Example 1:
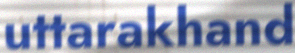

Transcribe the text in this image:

uttarakhand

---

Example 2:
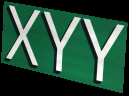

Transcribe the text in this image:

XYY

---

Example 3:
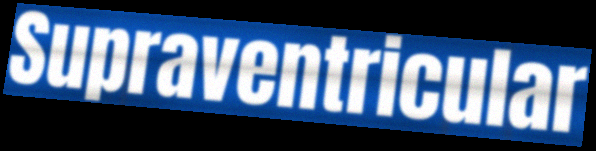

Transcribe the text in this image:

Supraventricular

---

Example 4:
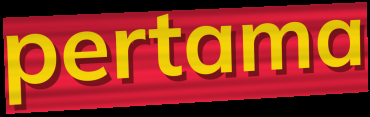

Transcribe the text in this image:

pertama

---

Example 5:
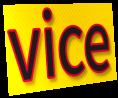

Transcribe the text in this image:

vice